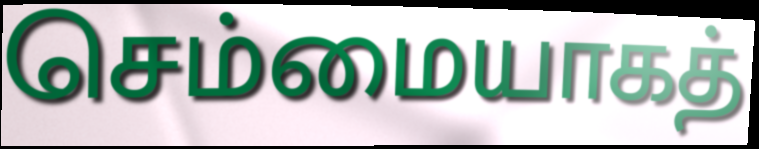
செம்மையாகத்